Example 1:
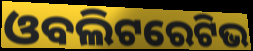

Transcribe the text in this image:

ଓବଲିଟରେଟିଭ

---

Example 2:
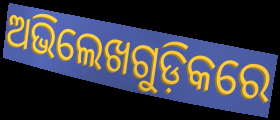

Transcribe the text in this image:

ଅଭିଲେଖଗୁଡ଼ିକରେ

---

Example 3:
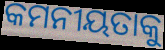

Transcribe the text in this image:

କମନୀୟତାକୁ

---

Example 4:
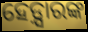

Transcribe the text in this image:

ହେଡ଼୍ସାରଙ୍କ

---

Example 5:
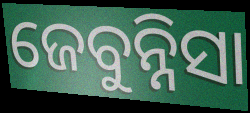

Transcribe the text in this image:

ଜେବୁନ୍ନିସା